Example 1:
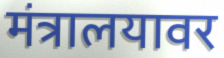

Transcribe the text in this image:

मंत्रालयावर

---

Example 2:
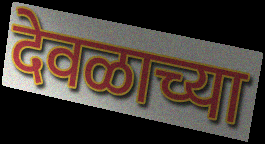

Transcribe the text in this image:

देवळाच्या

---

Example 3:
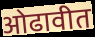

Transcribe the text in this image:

ओढावीत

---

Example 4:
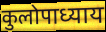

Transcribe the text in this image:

कुलोपाध्याय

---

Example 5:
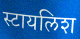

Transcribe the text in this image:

स्टायलिश